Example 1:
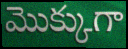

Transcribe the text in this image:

మొక్కుగా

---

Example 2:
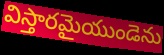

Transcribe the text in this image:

విస్తారమైయుండెను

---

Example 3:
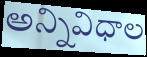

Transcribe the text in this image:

అన్నివిధాల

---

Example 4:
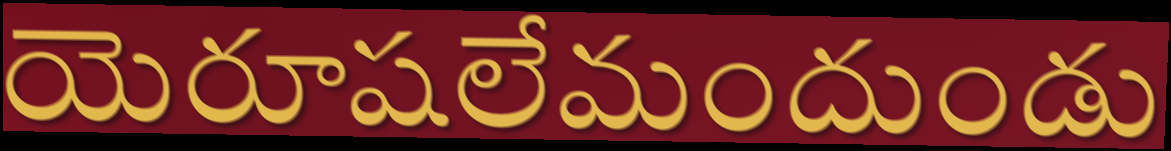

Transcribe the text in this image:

యెరూషలేమందుండు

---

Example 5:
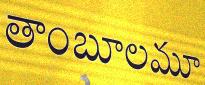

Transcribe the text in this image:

తాంబూలమూ